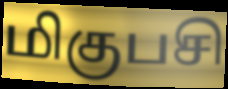
மிகுபசி